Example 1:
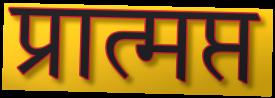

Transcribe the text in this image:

प्रात्मप्त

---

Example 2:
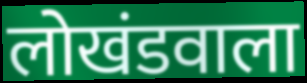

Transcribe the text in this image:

लोखंडवाला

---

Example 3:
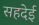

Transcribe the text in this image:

सहदेई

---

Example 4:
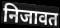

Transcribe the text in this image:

निजावत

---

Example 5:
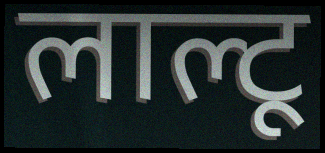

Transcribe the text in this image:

लाल्‍टू